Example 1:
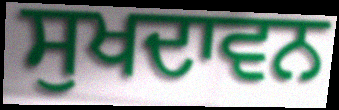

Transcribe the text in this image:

ਸੁਖਦਾਵਨ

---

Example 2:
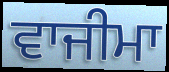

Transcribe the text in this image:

ਵਾਜੀਮਾ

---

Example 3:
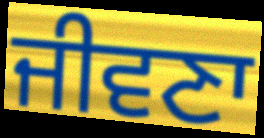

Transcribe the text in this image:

ਜੀਵਣਾ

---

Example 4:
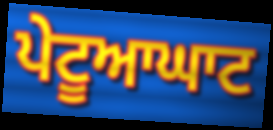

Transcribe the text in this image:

ਪੇਟੂਆਘਾਟ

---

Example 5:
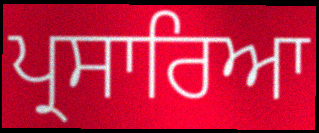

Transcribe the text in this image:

ਪ੍ਰਸਾਰਿਆ